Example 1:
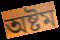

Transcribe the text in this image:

অষ্টম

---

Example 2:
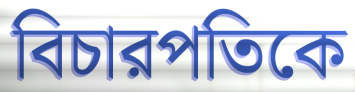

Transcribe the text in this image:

বিচারপতিকে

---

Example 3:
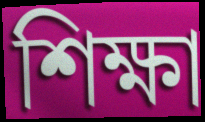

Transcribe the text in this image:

শিক্ষা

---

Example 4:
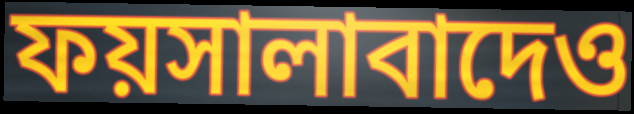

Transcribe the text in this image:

ফয়সালাবাদেও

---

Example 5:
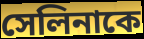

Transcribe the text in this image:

সেলিনাকে